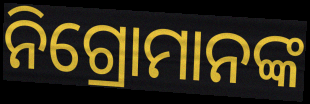
ନିଗ୍ରୋମାନଙ୍କ